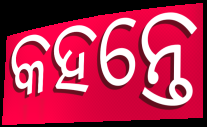
କହନ୍ତେ